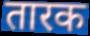
तारक